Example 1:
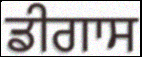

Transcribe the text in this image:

ਡੀਗਾਸ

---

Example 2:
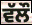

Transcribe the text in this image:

ਵੱਲੌ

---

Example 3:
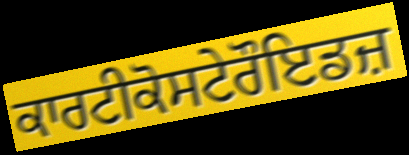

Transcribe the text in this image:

ਕਾਰਟੀਕੋਸਟੇਰੌਇਡਜ਼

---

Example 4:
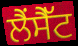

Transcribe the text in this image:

ਲੈਂਸੈੱਟ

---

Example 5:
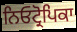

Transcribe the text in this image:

ਨਿਓਟ੍ਰੋਪਿਕਾ